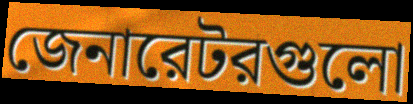
জেনারেটরগুলো